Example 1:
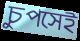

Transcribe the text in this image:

চুপসেই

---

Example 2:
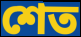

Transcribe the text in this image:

শেত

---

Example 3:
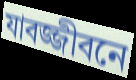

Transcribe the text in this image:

যাবজ্জীবনে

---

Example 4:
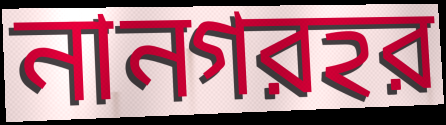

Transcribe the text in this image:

নানগরহর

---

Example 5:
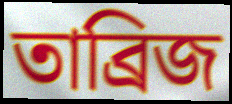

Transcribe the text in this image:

তাব্রিজ